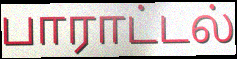
பாராட்டல்